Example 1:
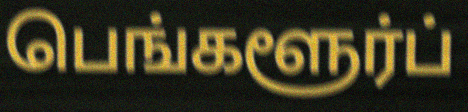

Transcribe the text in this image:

பெங்களூர்ப்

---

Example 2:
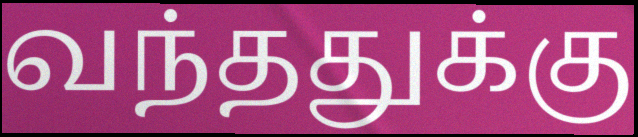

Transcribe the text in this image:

வந்ததுக்கு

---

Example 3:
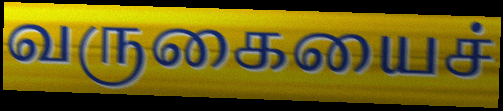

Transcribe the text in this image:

வருகையைச்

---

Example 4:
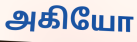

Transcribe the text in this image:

அகியோ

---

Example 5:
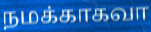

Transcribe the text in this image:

நமக்காகவா